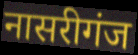
नासरीगंज